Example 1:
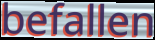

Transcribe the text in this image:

befallen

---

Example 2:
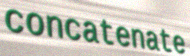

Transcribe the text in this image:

concatenate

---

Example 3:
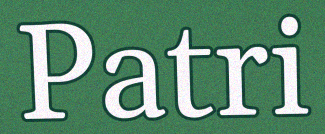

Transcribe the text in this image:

Patri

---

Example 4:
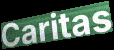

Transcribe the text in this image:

Caritas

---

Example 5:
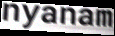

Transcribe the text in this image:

nyanam